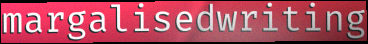
margalisedwriting